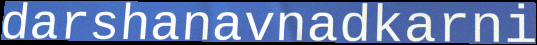
darshanavnadkarni